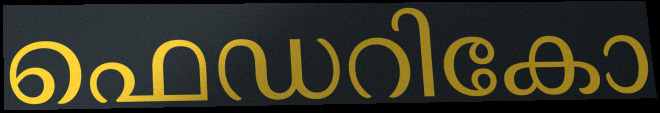
ഫെഡറികോ